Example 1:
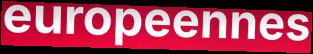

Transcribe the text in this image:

europeennes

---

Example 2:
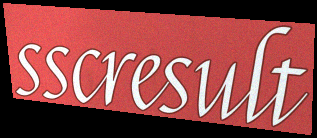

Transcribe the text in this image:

sscresult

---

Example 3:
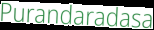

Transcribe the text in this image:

Purandaradasa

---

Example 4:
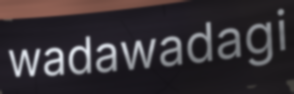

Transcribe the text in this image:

wadawadagi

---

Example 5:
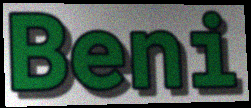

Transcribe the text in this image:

Beni